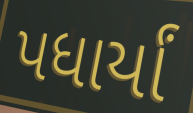
પધાર્યાં